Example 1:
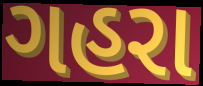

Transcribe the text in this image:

ગહરા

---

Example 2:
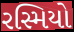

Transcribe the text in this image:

રસ્મિયો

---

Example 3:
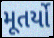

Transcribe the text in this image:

મૂતર્યો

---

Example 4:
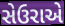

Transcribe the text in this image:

સેઉરાએ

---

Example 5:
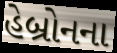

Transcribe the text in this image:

હેબ્રોનના